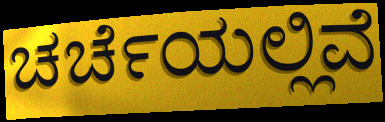
ಚರ್ಚೆಯಲ್ಲಿವೆ